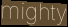
mighty